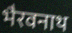
भैरवनाथ